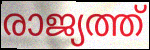
രാജ്യത്ത്